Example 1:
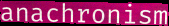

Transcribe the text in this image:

anachronism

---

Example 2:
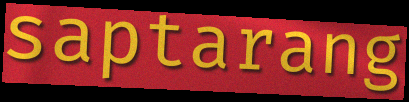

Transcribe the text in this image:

saptarang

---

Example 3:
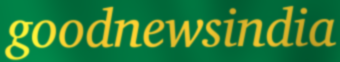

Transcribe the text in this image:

goodnewsindia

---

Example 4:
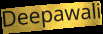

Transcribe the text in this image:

Deepawali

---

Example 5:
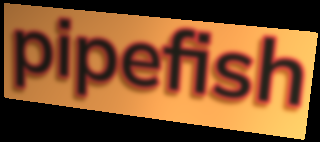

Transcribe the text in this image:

pipefish